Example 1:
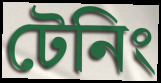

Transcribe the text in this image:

টেনিং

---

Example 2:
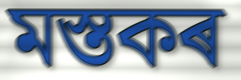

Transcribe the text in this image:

মস্তকৰ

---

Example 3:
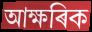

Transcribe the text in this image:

আক্ষৰিক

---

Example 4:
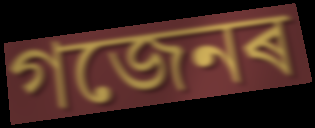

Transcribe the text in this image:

গজেনৰ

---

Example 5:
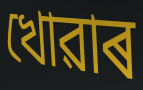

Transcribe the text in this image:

খোৱাৰ